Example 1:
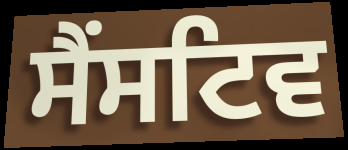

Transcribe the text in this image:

ਸੈਂਸਟਿਵ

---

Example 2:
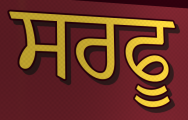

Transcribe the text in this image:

ਸਰਫੂ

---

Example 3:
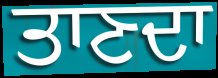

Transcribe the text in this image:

ਤਾਣਦਾ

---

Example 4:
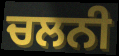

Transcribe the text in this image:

ਚਲਨੀ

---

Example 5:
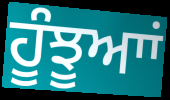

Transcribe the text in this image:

ਹੂੰਝੂਆਾਂ